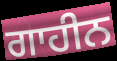
ਗਾਹੀਨ